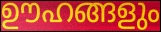
ഊഹങ്ങളും